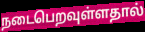
நடைபெறவுள்ளதால்